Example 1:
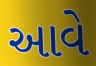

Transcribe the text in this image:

આવે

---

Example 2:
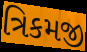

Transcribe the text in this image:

ત્રિકમજી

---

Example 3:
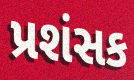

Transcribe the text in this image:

પ્રશંસક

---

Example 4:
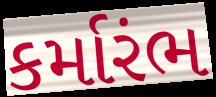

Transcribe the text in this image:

કર્મારંભ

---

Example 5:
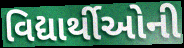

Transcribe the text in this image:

વિદ્યાર્થીઓની